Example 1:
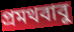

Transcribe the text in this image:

প্রমথবাবু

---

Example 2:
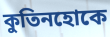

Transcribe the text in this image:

কুতিনহোকে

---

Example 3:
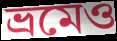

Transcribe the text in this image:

ভ্রমেও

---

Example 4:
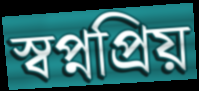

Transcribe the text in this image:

স্বপ্নপ্রিয়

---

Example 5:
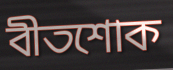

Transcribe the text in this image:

বীতশোক